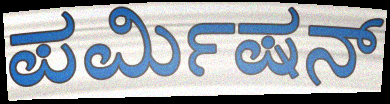
ಪರ್ಮಿಷನ್